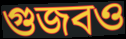
গুজবও